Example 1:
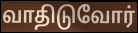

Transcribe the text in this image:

வாதிடுவோர்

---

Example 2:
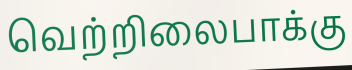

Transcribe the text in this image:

வெற்றிலைபாக்கு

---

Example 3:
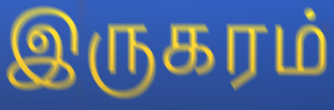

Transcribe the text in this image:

இருகரம்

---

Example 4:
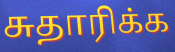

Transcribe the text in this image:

சுதாரிக்க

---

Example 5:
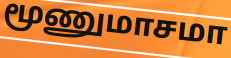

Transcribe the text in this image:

மூணுமாசமா